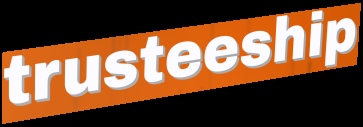
trusteeship